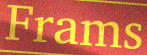
Frams